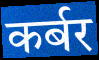
कर्बर